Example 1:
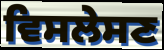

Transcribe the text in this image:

ਵਿਸਲੇਸਣ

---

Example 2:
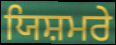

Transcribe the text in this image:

ਯਿਸ਼ਮਰੇ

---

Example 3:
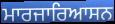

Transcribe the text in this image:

ਮਾਰਜਾਰਿਆਸਨ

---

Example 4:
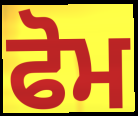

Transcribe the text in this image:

ਫੋਮ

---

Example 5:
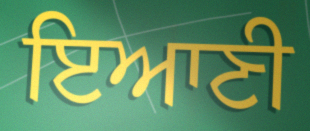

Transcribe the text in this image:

ਇਆਣੀ